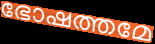
ഭോഷത്തമേ